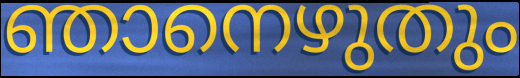
ഞാനെഴുതും